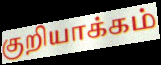
குறியாக்கம்